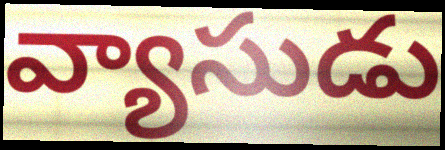
వ్యాసుడు